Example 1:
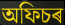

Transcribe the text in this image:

অফিচৰ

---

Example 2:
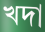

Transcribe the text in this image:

খদা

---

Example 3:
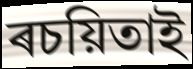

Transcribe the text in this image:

ৰচয়িতাই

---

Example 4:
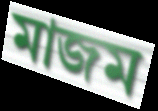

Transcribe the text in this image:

মাজম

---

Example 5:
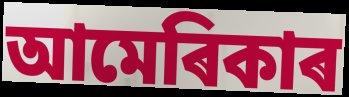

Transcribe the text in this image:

আমেৰিকাৰ